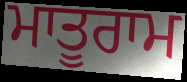
ਮਾਤੂਰਾਮ